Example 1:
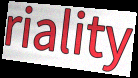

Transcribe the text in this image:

riality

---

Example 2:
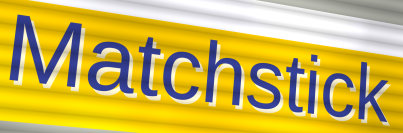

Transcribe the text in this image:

Matchstick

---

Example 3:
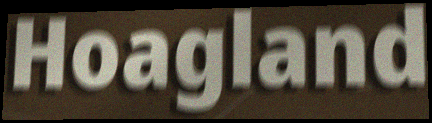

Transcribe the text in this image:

Hoagland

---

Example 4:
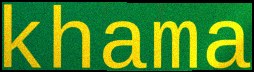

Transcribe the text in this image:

khama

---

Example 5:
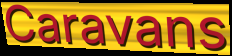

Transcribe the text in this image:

Caravans